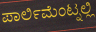
ಪಾರ್ಲಿಮೆಂಟ್ನಲ್ಲಿ